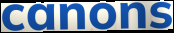
canons